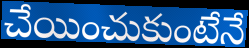
చేయించుకుంటేనే